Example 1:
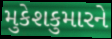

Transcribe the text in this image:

મુકેશકુમારને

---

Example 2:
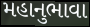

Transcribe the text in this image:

મહાનુભાવા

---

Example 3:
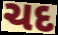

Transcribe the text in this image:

ચદ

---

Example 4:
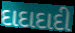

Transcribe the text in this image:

દાદાદાદી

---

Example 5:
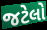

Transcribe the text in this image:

જટેલો